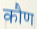
कौण